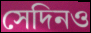
সেদিনও